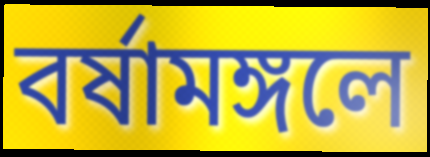
বর্ষামঙ্গলে